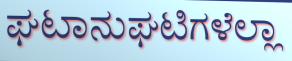
ಘಟಾನುಘಟಿಗಳೆಲ್ಲಾ